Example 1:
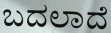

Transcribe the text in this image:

ಬದಲಾದೆ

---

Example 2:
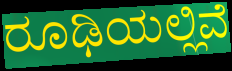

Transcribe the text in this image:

ರೂಢಿಯಲ್ಲಿವೆ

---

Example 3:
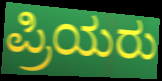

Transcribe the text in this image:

ಪ್ರಿಯರು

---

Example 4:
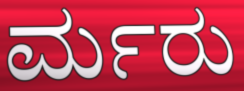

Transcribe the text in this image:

ರ್ಮರು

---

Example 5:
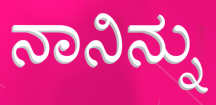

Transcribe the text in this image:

ನಾನಿನ್ನು